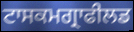
ਟਾਸਕਮਗ੍ਰਾਫੀਲਡ